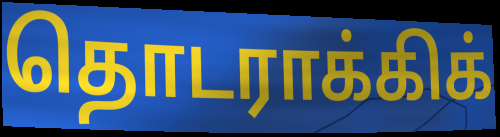
தொடராக்கிக்